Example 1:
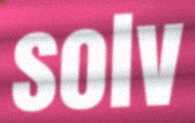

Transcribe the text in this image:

solv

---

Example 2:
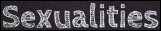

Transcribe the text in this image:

Sexualities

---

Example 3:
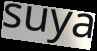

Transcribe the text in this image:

suya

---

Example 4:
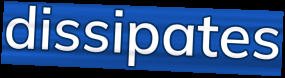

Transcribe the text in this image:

dissipates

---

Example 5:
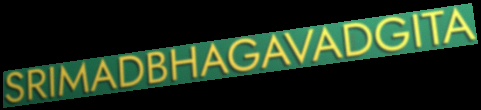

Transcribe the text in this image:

SRIMADBHAGAVADGITA